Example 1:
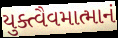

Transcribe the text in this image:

યુક્ત્વૈવમાત્માનં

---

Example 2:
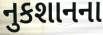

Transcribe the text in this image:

નુકશાનના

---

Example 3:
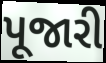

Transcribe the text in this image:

પૂજારી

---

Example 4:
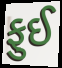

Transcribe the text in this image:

ફુઈ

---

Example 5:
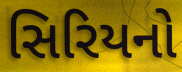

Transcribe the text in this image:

સિરિયનો